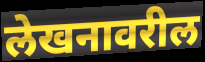
लेखनावरील